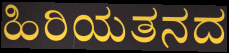
ಹಿರಿಯತನದ